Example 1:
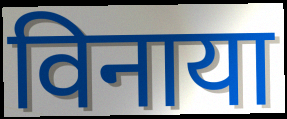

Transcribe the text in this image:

विनाया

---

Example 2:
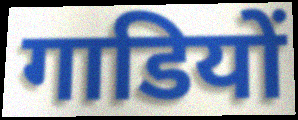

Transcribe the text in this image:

गाडियों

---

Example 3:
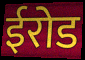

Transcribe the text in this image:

ईरोड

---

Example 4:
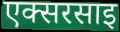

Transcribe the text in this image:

एक्सरसाइ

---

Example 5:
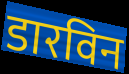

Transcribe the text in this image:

डारविन